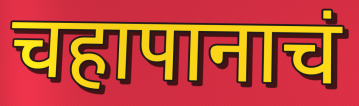
चहापानाचं